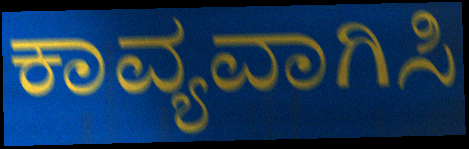
ಕಾವ್ಯವಾಗಿಸಿ